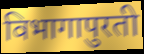
विभागापुरती